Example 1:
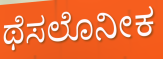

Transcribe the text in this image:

ಥೆಸಲೊನೀಕ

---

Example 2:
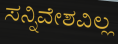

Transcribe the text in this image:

ಸನ್ನಿವೇಶವಿಲ್ಲ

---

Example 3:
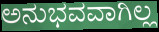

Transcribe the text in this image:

ಅನುಭವವಾಗಿಲ್ಲ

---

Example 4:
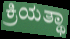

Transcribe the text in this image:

ಕ್ರಿಯತ್ಥಾ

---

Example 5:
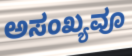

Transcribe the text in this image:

ಅಸಂಖ್ಯವೂ